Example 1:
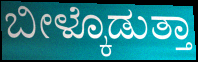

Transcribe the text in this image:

ಬೀಳ್ಕೊಡುತ್ತಾ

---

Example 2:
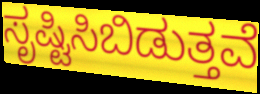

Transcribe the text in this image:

ಸೃಷ್ಟಿಸಿಬಿಡುತ್ತವೆ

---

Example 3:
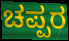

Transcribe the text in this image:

ಚಪ್ಪರ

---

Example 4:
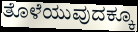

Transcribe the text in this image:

ತೊಳೆಯುವುದಕ್ಕೂ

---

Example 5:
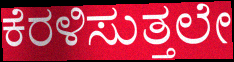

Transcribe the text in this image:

ಕೆರಳಿಸುತ್ತಲೇ